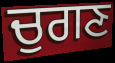
ਚੁਗਣ